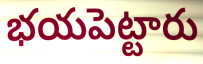
భయపెట్టారు